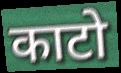
काटो